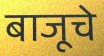
बाजूचे